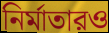
নির্মাতারও